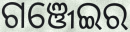
ଗଞ୍ଜେଇର